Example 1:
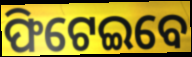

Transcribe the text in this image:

ଫିଟେଇବେ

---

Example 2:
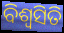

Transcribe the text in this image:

ବିଶ୍ଵସିତି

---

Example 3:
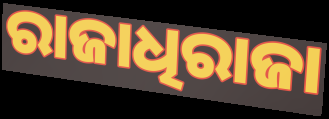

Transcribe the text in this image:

ରାଜାଧିରାଜା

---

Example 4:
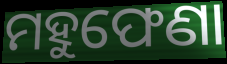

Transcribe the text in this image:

ମହୁଫେଣା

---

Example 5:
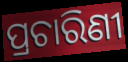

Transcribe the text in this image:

ପ୍ରଚାରିଣୀ